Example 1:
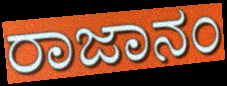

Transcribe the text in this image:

ರಾಜಾನಂ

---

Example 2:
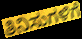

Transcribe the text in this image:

ತಿನಿಸುಗಳಿಗೆ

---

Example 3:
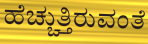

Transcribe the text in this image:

ಹೆಚ್ಚುತ್ತಿರುವಂತೆ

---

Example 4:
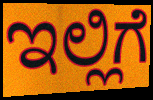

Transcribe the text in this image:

ಇಲ್ಲಿಗೆ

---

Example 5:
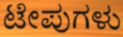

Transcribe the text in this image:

ಟೇಪುಗಳು